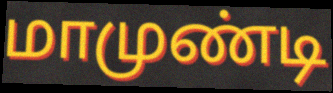
மாமுண்டி